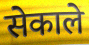
सेकाले